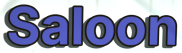
Saloon